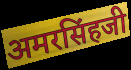
अमरसिंहजी